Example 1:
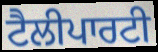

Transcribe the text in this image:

ਟੈਲੀਪਾਰਟੀ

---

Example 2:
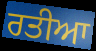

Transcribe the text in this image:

ਰਤੀਆ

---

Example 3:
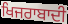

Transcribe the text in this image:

ਖਿਜਰਾਬਾਦੀ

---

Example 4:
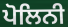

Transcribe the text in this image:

ਪੋਲਿਨੀ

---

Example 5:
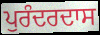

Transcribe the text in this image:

ਪੁਰੰਦਰਦਾਸ